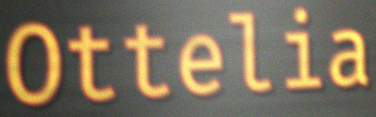
Ottelia